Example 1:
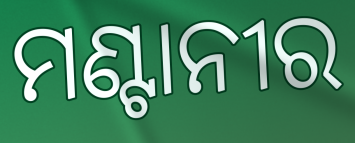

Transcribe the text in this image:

ମଣ୍ଟାନୀର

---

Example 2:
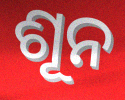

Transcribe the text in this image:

ଶୂନ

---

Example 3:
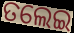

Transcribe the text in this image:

ତଲେଇ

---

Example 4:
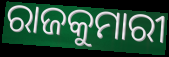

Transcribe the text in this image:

ରାଜକୁମାରୀ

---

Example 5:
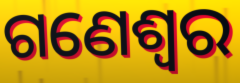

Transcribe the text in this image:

ଗଣେଶ୍ୱର